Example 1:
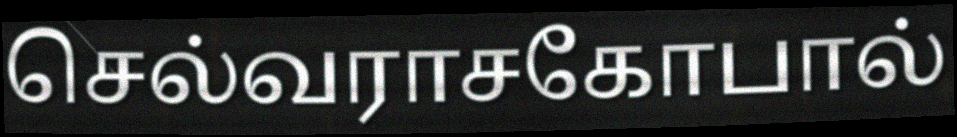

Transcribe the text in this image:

செல்வராசகோபால்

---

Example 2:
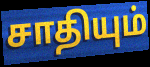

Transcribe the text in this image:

சாதியும்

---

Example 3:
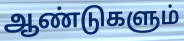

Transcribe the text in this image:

ஆண்டுகளும்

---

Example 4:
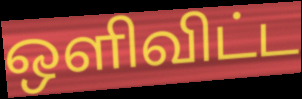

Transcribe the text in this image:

ஒளிவிட்ட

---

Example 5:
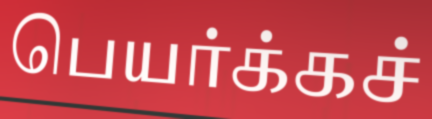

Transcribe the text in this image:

பெயர்க்கச்